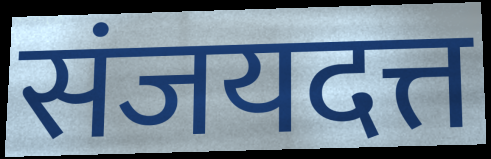
संजयदत्त